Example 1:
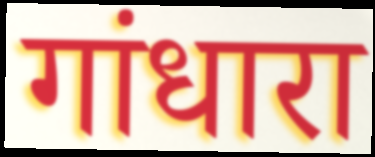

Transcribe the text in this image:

गांधारा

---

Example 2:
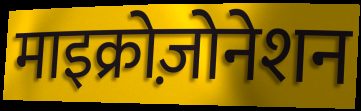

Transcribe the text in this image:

माइक्रोज़ोनेशन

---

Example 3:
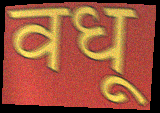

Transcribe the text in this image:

वधू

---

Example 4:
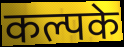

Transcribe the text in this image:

कल्पके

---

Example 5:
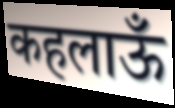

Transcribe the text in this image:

कहलाऊँ